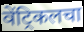
वेंट्रिकलचा